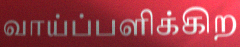
வாய்ப்பளிக்கிற